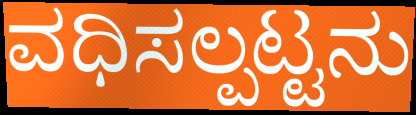
ವಧಿಸಲ್ಪಟ್ಟನು